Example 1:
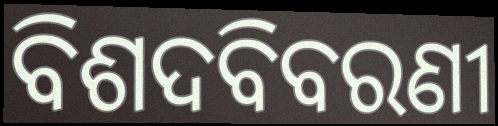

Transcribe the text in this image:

ବିଶଦବିବରଣୀ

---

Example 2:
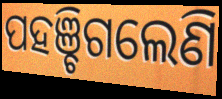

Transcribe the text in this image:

ପହଞ୍ଚିଗଲେଣି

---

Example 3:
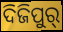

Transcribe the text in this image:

ଦିଜିପୁର୍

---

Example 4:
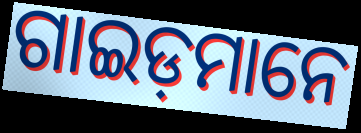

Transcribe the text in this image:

ଗାଇଡ଼ମାନେ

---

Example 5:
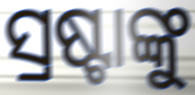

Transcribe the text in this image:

ସ୍ରଷ୍ଟାଙ୍କୁ